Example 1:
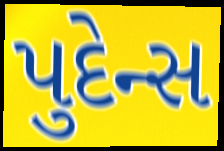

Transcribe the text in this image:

પુદેન્સ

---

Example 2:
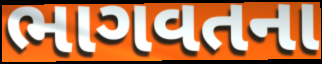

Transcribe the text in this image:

ભાગવતના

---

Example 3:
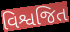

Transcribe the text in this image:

વિશ્વજિત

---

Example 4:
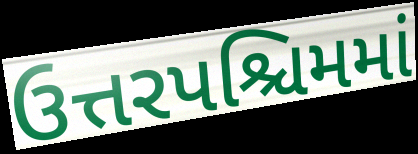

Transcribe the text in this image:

ઉત્તરપશ્ચિમમાં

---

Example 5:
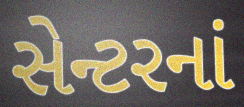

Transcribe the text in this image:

સેન્ટરનાં